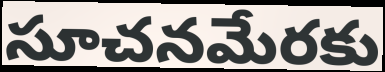
సూచనమేరకు